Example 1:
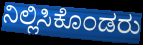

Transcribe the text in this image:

ನಿಲ್ಲಿಸಿಕೊಂಡರು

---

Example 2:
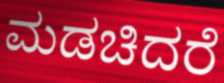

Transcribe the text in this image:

ಮಡಚಿದರೆ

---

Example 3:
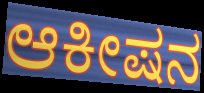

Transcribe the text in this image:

ಆಕೀಷನ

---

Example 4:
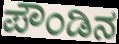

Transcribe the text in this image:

ಪೌಂಡಿನ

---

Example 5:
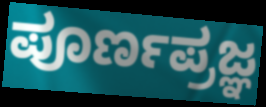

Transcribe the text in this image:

ಪೂರ್ಣಪ್ರಜ್ಞ